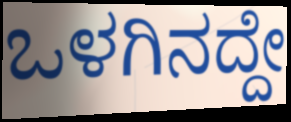
ಒಳಗಿನದ್ದೇ